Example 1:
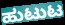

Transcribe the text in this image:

ಹುಟುಟ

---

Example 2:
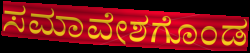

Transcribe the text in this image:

ಸಮಾವೇಶಗೊಂಡ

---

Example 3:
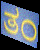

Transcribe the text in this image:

ತಂ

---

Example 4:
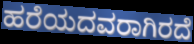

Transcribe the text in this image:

ಹರೆಯದವರಾಗಿರದೆ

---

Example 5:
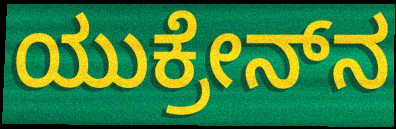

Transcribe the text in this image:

ಯುಕ್ರೇನ್‌ನ